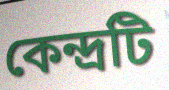
কেন্দ্রটি